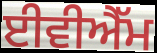
ਈਵੀਐੱਮ